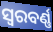
ସ୍ୱରବର୍ଣ୍ଣ